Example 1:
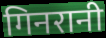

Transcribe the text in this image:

गिनरानी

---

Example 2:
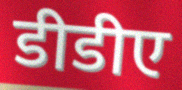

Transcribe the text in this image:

डीडीए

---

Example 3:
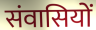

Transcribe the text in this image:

संवासियों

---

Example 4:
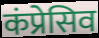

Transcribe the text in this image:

कंप्रेसिव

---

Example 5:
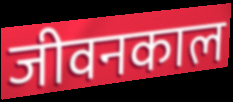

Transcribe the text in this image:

जीवनकाल